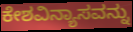
ಕೇಶವಿನ್ಯಾಸವನ್ನು